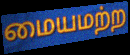
மையமற்ற